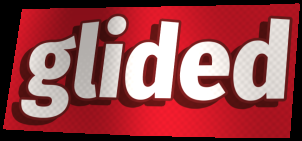
glided